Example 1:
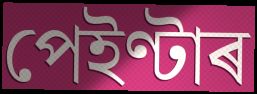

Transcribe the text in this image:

পেইণ্টাৰ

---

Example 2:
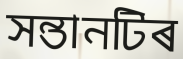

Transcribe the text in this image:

সন্তানটিৰ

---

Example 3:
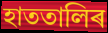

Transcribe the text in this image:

হাততালিৰ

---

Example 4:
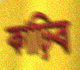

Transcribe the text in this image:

কাঢ়িব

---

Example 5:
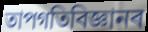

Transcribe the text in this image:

তাপগতিবিজ্ঞানৰ